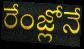
రేంజ్లోనే